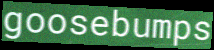
goosebumps